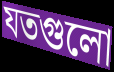
যতগুলো